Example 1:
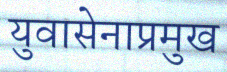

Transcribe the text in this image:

युवासेनाप्रमुख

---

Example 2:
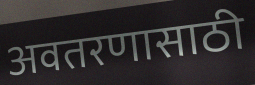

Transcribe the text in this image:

अवतरणासाठी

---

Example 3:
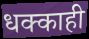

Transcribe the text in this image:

धक्काही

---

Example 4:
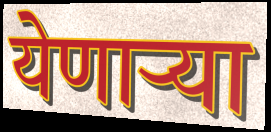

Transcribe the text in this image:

येणाऱ्या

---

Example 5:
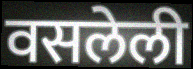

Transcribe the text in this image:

वसलेली